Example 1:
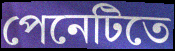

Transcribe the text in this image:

পেনেটিতে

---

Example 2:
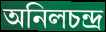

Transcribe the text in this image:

অনিলচন্দ্র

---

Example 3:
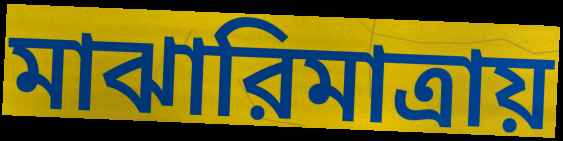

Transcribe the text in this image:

মাঝারিমাত্রায়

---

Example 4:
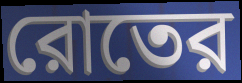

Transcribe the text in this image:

রোতের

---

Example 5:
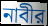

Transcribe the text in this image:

নাবীর